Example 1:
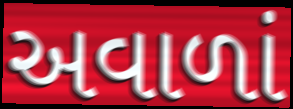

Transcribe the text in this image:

અવાળાં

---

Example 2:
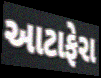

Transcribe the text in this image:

આટાફેરા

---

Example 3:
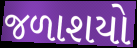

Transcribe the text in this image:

જળાશયો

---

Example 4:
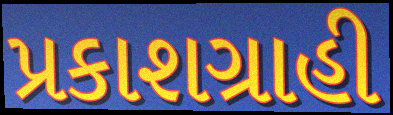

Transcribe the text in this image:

પ્રકાશગ્રાહી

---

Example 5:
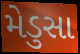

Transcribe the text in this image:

મેડુસા